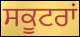
ਸਕੂਟਰਾਂ